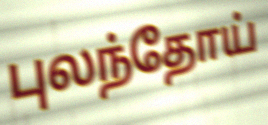
புலந்தோய்